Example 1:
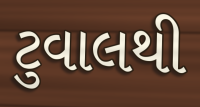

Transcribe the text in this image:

ટુવાલથી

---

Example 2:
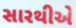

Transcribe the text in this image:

સારથીએ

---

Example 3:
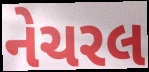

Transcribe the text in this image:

નેચરલ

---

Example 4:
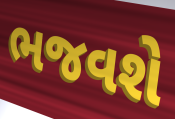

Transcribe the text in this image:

ભજવશે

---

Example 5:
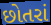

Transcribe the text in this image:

છોતરાં